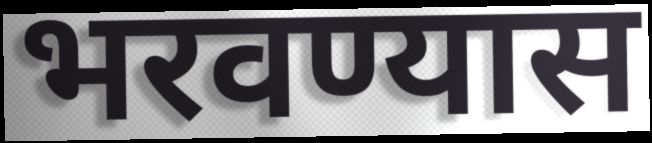
भरवण्यास